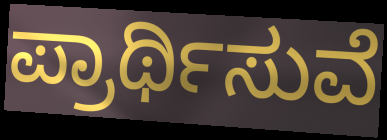
ಪ್ರಾರ್ಥಿಸುವೆ